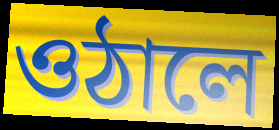
ওঠালে